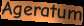
Ageratum